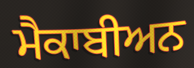
ਮੈਕਾਬੀਅਨ